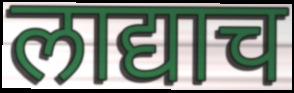
लाद्याच